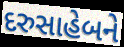
દરુસાહેબને